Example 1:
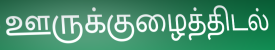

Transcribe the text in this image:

ஊருக்குழைத்திடல்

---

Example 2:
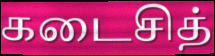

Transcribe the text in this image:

கடைசித்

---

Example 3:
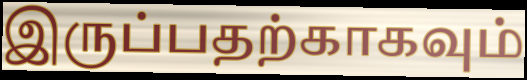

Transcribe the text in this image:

இருப்பதற்காகவும்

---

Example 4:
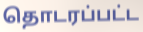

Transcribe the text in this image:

தொடரப்பட்ட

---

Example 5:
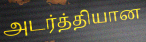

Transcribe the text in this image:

அடர்த்தியான